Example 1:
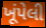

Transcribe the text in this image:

ખૂંપેલી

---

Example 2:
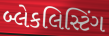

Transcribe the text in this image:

બ્લેકલિસ્ટિંગ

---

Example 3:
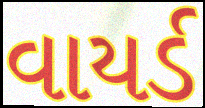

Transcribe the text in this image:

વાયર્ડ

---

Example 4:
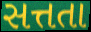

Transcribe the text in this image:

સત્તતા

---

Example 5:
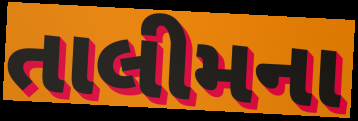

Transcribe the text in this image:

તાલીમના